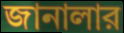
জানালার